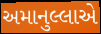
અમાનુલ્લાએ